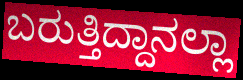
ಬರುತ್ತಿದ್ದಾನಲ್ಲಾ